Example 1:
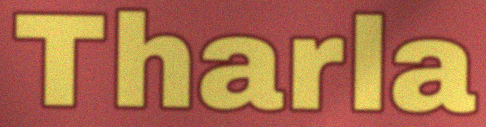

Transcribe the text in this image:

Tharla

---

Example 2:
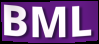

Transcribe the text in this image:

BML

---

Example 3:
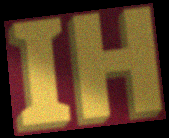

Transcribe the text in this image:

IH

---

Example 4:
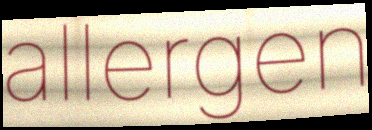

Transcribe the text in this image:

allergen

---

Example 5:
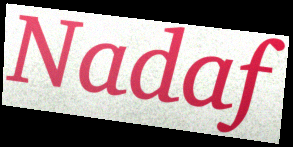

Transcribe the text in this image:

Nadaf